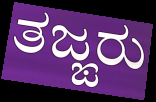
ತಜ್ಙರು